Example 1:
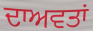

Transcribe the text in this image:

ਦਾਅਵਤਾਂ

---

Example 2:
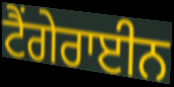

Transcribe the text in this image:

ਟੈਂਗੇਰਾਈਨ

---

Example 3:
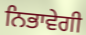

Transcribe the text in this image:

ਨਿਭਾਵੇਗੀ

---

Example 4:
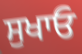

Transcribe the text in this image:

ਸੁਖਾਓ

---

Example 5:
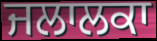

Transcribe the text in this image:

ਜਲਾਲਕਾ